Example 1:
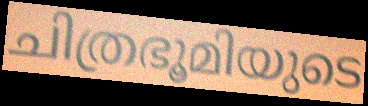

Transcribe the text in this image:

ചിത്രഭൂമിയുടെ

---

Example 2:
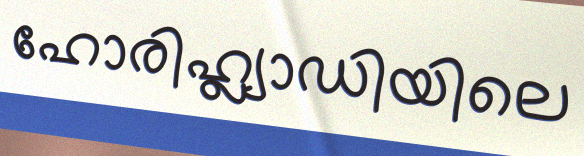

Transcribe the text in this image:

ഹോരിഹ്ല്യാഡിയിലെ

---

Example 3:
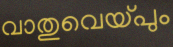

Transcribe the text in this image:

വാതുവെയ്പും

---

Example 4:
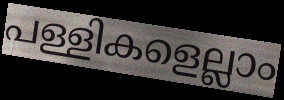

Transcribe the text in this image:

പള്ളികളെല്ലാം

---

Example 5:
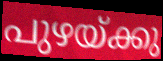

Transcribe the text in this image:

പുഴയ്ക്കു